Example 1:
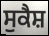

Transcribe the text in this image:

ਸੁਕੈਸ਼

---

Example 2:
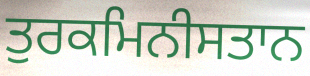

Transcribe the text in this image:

ਤੁਰਕਮਿਨੀਸਤਾਨ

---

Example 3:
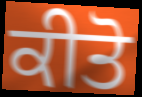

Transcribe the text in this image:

ਕੀਤੋ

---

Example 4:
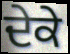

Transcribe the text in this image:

ਦੇਕੇ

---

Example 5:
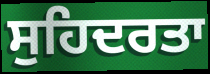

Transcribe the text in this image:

ਸੁਹਿਦਰਤਾ